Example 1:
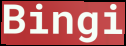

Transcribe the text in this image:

Bingi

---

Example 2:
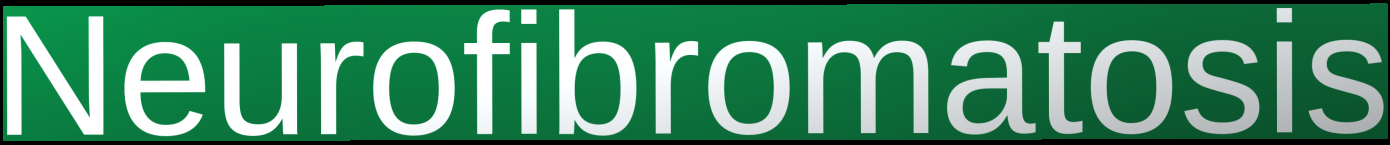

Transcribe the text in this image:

Neurofibromatosis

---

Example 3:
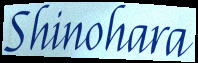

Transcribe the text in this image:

Shinohara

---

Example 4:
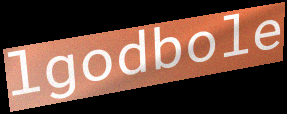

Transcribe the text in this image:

lgodbole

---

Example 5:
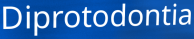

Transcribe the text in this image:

Diprotodontia